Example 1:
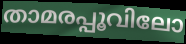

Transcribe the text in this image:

താമരപ്പൂവിലോ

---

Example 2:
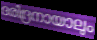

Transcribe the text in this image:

ദരിദ്രനായാലും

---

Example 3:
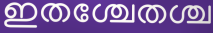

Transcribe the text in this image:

ഇതശ്ചേതശ്ച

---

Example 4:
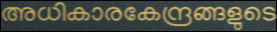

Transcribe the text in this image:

അധികാരകേന്ദ്രങ്ങളുടെ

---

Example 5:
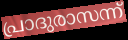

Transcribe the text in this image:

പ്രാദുരാസന്ന്